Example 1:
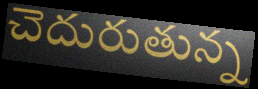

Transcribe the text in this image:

చెదురుతున్న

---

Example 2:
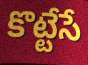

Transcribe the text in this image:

కొట్టేసే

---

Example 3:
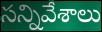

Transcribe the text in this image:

సన్నివేశాలు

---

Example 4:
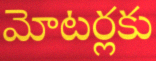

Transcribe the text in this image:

మోటర్లకు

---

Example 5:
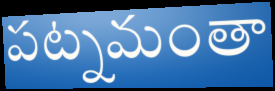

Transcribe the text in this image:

పట్నమంతా